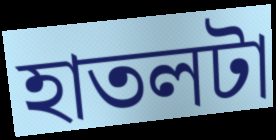
হাতলটা